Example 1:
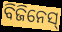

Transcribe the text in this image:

ବିଜିନେସ୍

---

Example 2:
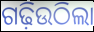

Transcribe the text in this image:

ଗଢ଼ିଉଠିଲା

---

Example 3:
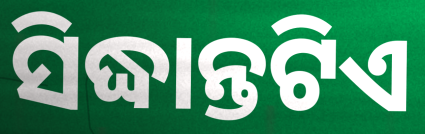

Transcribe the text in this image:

ସିଦ୍ଧାନ୍ତଟିଏ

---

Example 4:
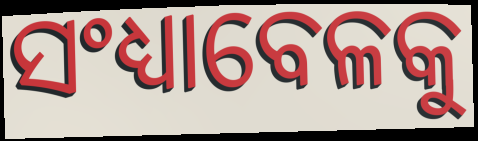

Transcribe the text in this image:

ସଂଧ୍ୟାବେଳକୁ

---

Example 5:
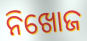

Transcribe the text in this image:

ନିଖୋଜ